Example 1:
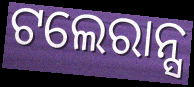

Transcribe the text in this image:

ଟଲେରାନ୍ସ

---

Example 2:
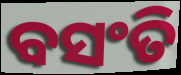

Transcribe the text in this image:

ବସଂତି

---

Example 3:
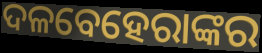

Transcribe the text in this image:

ଦଳବେହେରାଙ୍କର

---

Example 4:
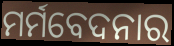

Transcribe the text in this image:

ମର୍ମବେଦନାର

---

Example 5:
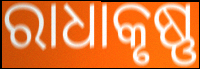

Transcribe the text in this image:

ରାଧାକୃଷ୍ଣ